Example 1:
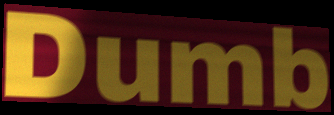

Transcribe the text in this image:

Dumb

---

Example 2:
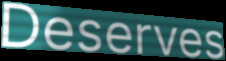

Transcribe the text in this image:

Deserves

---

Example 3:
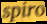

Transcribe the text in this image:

spiro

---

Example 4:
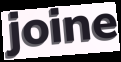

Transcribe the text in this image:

joine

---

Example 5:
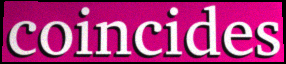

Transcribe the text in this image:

coincides